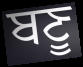
ਬਣੂ